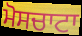
ਮੋਸਚਾਟਾ